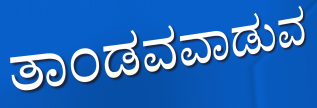
ತಾಂಡವವಾಡುವ